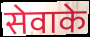
सेवाके